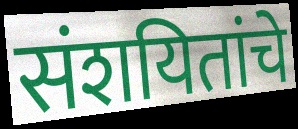
संशयितांचे